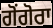
ਗੋਂਗੋਰਾ